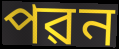
পৱন